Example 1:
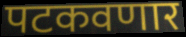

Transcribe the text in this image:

पटकवणार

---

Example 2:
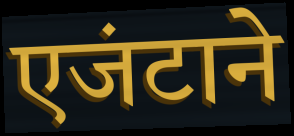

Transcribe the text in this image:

एजंटाने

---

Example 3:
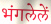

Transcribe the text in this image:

भंगलेलें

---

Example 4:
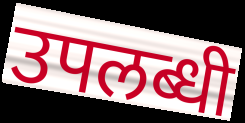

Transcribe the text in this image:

उपलब्धी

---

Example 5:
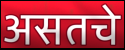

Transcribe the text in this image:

असतचे